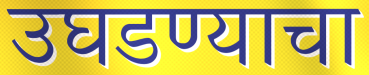
उघडण्याचा